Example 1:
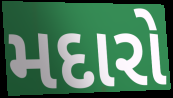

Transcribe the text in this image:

મદારો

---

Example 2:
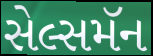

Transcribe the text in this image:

સેલ્સમૅન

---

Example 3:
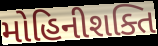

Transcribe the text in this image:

મોહિનીશક્તિ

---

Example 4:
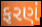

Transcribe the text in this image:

ફરણં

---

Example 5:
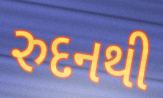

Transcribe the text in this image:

રુદનથી